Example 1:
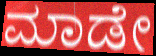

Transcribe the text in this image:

ಮಾಡೇ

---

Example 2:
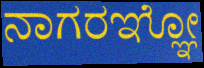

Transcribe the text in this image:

ನಾಗರಞ್ಞೋ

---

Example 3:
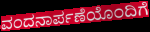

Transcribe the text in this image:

ವಂದನಾರ್ಪಣೆಯೊಂದಿಗೆ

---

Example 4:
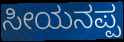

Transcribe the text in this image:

ಸೀಯನಪ್ಪ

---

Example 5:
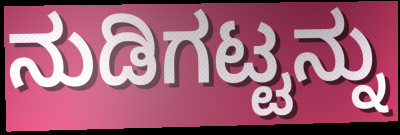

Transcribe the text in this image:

ನುಡಿಗಟ್ಟನ್ನು